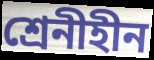
শ্রেনীহীন